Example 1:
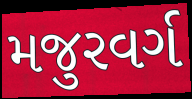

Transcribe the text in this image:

મજુરવર્ગ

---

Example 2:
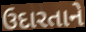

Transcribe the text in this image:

ઉદારતાને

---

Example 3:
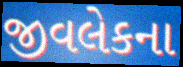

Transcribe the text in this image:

જીવલેકના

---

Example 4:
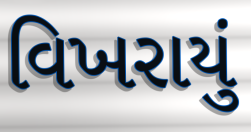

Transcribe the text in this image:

વિખરાયું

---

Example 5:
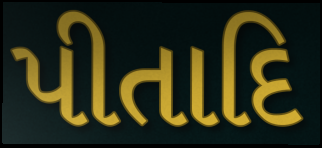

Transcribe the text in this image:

પીતાદિ